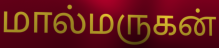
மால்மருகன்